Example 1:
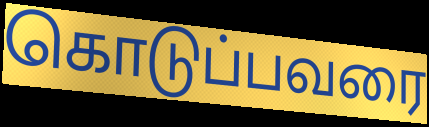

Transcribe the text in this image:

கொடுப்பவரை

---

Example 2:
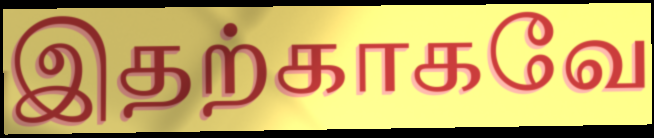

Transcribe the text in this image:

இதற்காகவே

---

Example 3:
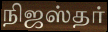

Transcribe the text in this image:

நிஜஸ்தர்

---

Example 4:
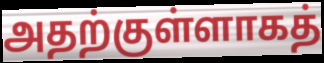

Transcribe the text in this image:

அதற்குள்ளாகத்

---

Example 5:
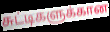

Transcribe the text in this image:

சுட்டிகளுக்கான